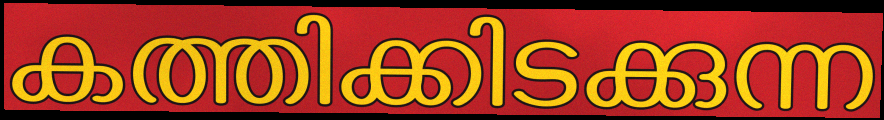
കത്തിക്കിടക്കുന്ന